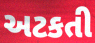
અટકતી